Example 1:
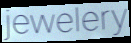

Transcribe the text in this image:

jewelery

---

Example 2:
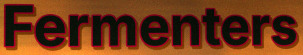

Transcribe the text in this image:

Fermenters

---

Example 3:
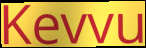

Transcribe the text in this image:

Kevvu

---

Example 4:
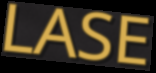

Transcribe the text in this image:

LASE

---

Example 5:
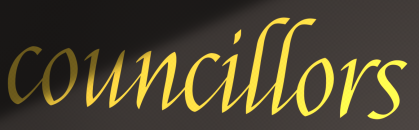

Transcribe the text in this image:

councillors